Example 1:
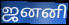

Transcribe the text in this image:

ஜனனி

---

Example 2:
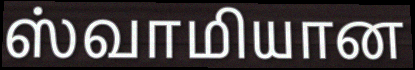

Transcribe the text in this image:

ஸ்வாமியான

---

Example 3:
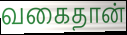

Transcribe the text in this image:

வகைதான்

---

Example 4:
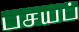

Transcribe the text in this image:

பசயப்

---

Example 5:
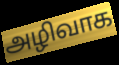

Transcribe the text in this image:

அழிவாக